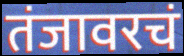
तंजावरचं